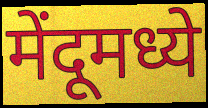
मेंदूमध्ये